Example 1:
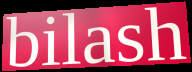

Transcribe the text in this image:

bilash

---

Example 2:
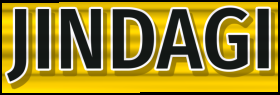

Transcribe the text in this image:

JINDAGI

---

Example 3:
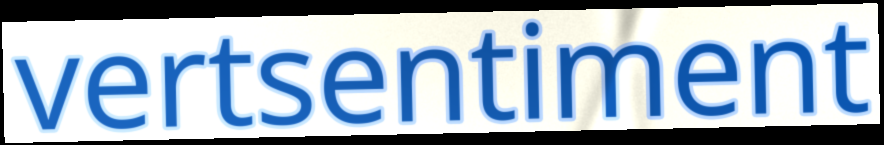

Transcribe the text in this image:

vertsentiment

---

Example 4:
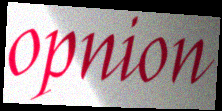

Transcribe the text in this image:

opnion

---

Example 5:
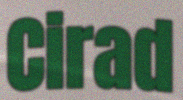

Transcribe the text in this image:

Cirad